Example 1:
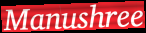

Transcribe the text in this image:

Manushree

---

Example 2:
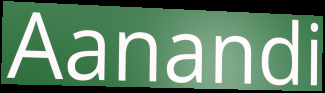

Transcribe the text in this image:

Aanandi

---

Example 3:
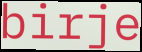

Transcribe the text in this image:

birje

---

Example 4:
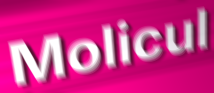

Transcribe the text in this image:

Molicul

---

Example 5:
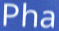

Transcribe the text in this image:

Pha